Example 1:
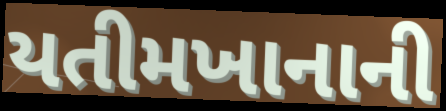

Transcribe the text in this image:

યતીમખાનાની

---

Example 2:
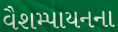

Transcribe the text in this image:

વૈશમ્પાયનના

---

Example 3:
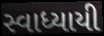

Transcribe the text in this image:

સ્વાધ્યાયી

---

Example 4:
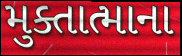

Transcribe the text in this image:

મુક્તાત્માના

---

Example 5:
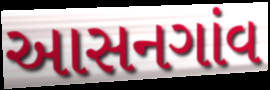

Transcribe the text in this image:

આસનગાંવ